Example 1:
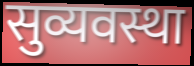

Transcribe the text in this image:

सुव्यवस्था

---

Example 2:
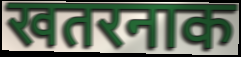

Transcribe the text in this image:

खतरनाक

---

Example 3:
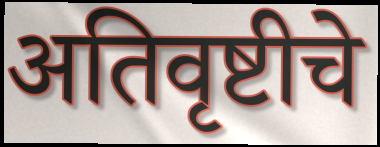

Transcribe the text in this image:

अतिवृष्टीचे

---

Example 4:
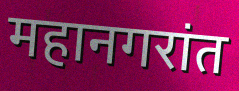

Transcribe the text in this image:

महानगरांत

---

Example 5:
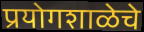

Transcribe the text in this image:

प्रयोगशाळेचे